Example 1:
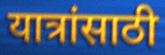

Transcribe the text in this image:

यात्रांसाठी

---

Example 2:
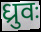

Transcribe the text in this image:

ध्रुवः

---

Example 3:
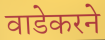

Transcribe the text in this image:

वाडेकरने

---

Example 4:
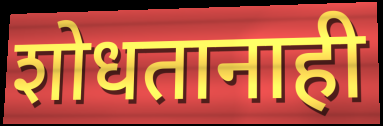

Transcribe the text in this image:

शोधतानाही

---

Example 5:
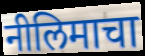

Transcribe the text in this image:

नीलिमाचा